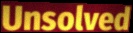
Unsolved